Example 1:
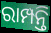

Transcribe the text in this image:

ରାମ୍ପନ୍ତି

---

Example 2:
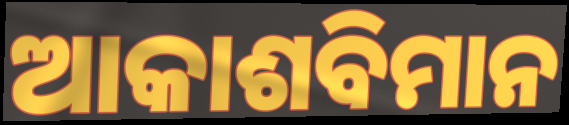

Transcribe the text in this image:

ଆକାଶବିମାନ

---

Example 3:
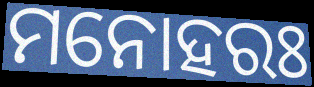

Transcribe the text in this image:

ମନୋହରଃ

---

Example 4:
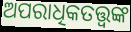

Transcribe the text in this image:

ଅପରାଧିକତତ୍ତ୍ୱଙ୍କ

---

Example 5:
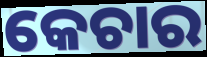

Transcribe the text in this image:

କେଚାର